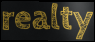
realty